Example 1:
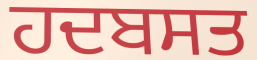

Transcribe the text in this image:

ਹਦਬਸਤ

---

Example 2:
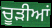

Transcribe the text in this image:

ਚੂੜੀਆਂ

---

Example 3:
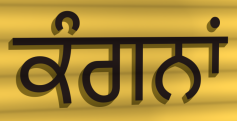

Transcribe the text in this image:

ਕੰਗਨਾਂ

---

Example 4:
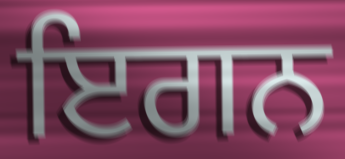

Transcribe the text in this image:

ਇਗਨ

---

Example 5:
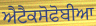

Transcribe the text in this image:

ਐਟੈਕਸੋਫੋਬੀਆ